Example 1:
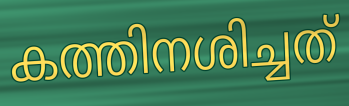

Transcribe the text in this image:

കത്തിനശിച്ചത്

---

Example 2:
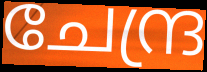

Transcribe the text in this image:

ചേന്ദ്ര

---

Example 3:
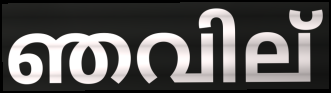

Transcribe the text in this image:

ഞവില്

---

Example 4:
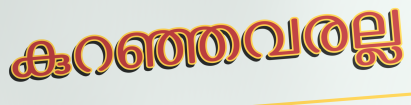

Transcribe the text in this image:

കുറഞ്ഞവരല്ല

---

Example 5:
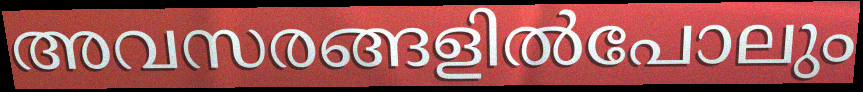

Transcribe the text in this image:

അവസരങ്ങളിൽപോലും